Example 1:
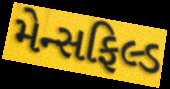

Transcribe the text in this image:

મેન્સફિલ્ડ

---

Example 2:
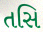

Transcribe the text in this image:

તસિ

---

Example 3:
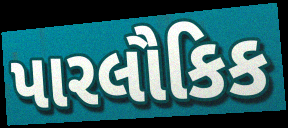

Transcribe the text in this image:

પારલૌકિક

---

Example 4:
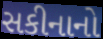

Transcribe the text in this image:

સકીનાનો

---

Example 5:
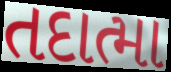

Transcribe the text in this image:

તદાત્મા